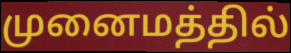
முனைமத்தில்